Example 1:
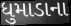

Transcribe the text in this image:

ધુમાડાના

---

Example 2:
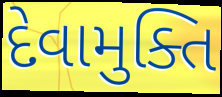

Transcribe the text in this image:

દેવામુક્તિ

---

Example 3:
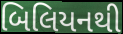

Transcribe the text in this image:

બિલિયનથી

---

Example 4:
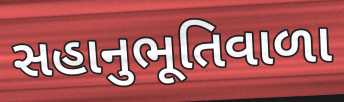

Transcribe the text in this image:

સહાનુભૂતિવાળા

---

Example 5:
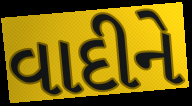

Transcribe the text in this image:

વાદીને